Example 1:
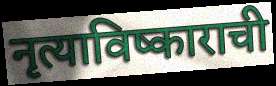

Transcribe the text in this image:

नृत्याविष्काराची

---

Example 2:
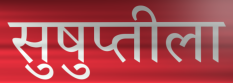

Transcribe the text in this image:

सुषुप्तीला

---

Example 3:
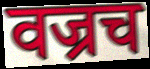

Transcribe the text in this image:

वज्रच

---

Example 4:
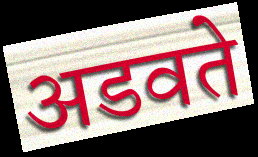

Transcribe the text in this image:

अडवते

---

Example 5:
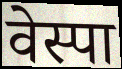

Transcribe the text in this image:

वेस्पा